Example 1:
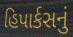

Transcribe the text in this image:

હિપાર્કસનું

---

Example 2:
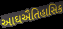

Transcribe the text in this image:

આઘઐતિહાસિક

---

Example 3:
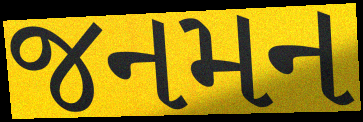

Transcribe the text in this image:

જનમન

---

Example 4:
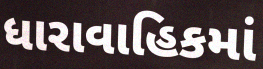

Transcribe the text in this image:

ધારાવાહિકમાં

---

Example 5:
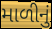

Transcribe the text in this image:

માળીનું